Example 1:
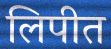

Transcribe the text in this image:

लिपीत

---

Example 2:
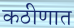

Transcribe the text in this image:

कठीणात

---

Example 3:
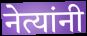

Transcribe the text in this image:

नेत्यांनी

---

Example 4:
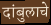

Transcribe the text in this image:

दांबुलाचे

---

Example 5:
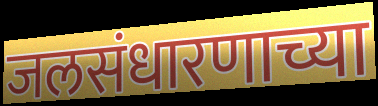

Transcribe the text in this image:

जलसंधारणाच्या